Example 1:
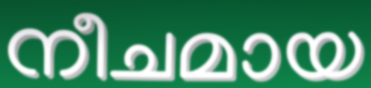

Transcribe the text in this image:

നീചമായ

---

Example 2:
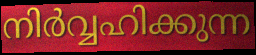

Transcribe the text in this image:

നിർവ്വഹിക്കുന്ന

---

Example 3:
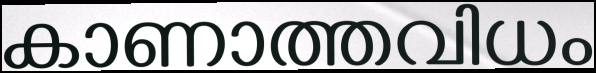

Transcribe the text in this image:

കാണാത്തവിധം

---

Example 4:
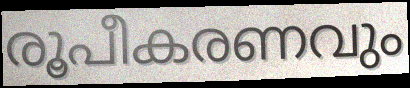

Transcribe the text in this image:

രൂപീകരണവും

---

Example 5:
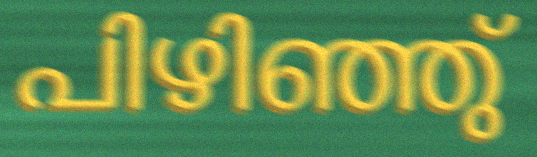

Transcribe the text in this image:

പിഴിഞ്ഞു്